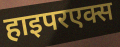
हाइपरएक्स